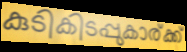
കുടികിടപ്പുകാര്ക്ക്